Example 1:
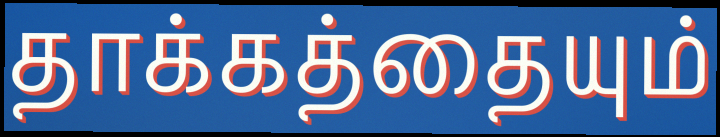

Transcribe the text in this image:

தாக்கத்தையும்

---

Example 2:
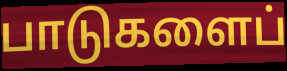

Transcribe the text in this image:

பாடுகளைப்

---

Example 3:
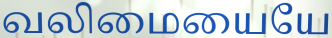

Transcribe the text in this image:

வலிமையையே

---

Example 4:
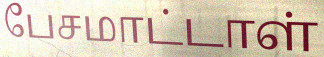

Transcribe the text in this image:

பேசமாட்டாள்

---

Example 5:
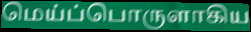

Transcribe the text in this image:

மெய்ப்பொருளாகிய